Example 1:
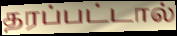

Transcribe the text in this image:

தரப்பட்டால்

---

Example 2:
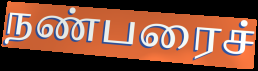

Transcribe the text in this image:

நண்பரைச்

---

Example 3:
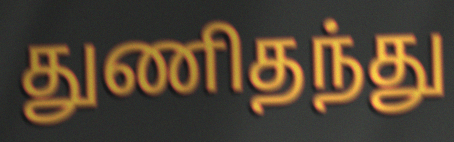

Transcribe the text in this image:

துணிதந்து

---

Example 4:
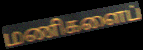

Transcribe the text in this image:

மணிகளைப்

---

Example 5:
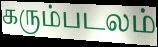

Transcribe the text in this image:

கரும்படலம்